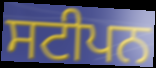
ਸਟੀਪਨ